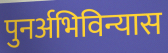
पुनर्अभिविन्यास